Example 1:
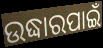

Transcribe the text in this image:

ଉଦ୍ଧାରପାଇଁ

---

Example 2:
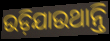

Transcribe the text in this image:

ଉଡ଼ିଯାଉଥାନ୍ତି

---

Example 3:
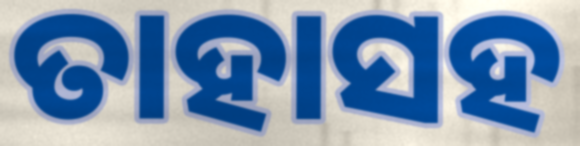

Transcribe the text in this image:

ତାହାସହ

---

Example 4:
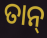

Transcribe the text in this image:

ତାନ୍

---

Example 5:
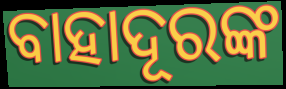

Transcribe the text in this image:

ବାହାଦୂରଙ୍କ